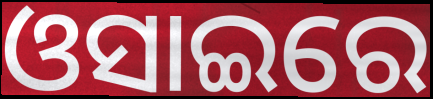
ଓସାଇରେ